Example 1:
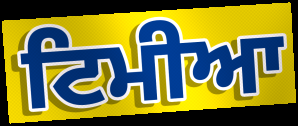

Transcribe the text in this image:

ਟਿਮੀਆ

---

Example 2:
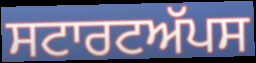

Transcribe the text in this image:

ਸਟਾਰਟਅੱਪਸ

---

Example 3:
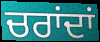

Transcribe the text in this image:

ਚਰਾਂਦਾਂ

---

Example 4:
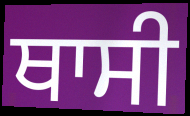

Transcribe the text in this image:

ਥਾਸੀ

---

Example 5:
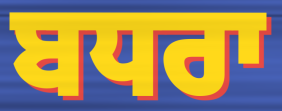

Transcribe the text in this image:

ਬਧਰਾ